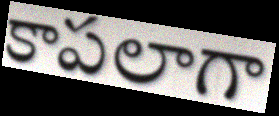
కాపలాగా